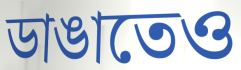
ডাঙাতেও